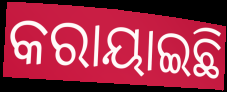
କରାୟାଇଛି